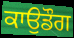
ਕਾਉਡੌਗ